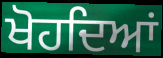
ਖੋਹਦਿਆਂ